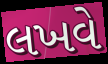
લખવે